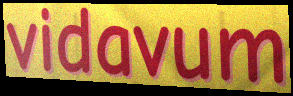
vidavum